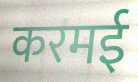
करमई